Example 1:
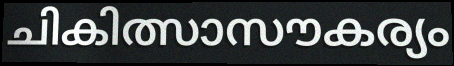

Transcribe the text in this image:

ചികിത്സാസൗകര്യം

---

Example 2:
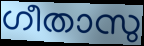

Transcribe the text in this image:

ഗീതാസു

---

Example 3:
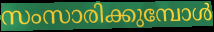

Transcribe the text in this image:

സംസാരിക്കുമ്പോൾ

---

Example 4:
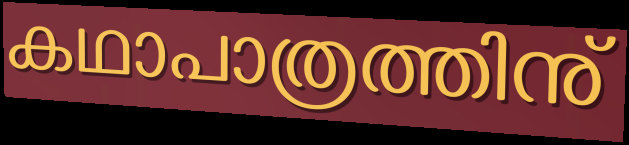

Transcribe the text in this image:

കഥാപാത്രത്തിനു്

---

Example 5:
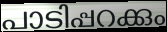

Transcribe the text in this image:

പാടിപ്പറക്കും